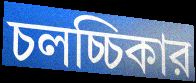
চলচ্চিকার